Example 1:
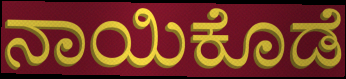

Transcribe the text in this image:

ನಾಯಿಕೊಡೆ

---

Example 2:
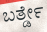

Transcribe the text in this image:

ಬರ್ತ್ಡೇ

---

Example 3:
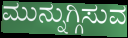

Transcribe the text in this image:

ಮುನ್ನುಗ್ಗಿಸುವ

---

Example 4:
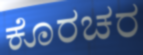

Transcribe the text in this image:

ಕೊರಚರ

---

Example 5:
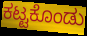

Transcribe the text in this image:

ಕಟ್ಟಕೊಂಡು